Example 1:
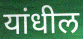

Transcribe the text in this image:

यांधील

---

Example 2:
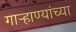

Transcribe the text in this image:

गाऱ्हाण्यांच्या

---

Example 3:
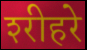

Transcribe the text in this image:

श्रीहरे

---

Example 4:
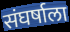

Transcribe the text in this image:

संघर्षाला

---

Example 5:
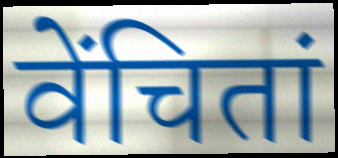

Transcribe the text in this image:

वेंचितां